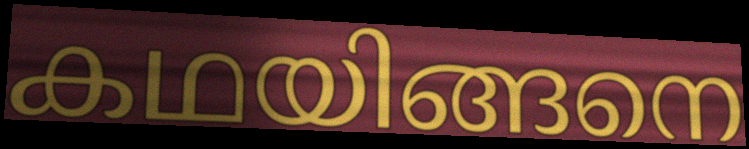
കഥയിങ്ങനെ